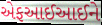
એફઆઈઆઈને